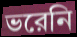
ভরেনি